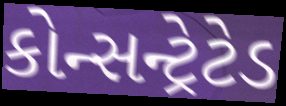
કોન્સન્ટ્રેટેડ